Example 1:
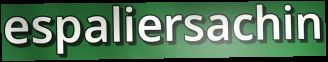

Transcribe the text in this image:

espaliersachin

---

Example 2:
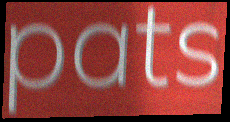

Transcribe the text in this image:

pats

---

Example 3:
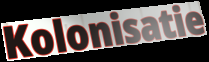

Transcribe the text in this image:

Kolonisatie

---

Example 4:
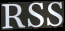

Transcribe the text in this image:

RSS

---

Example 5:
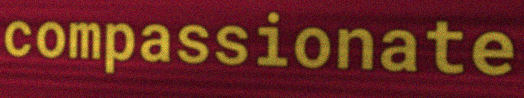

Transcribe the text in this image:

compassionate